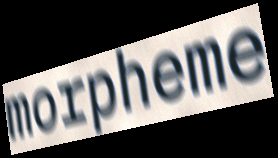
morpheme